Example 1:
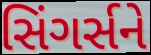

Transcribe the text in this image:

સિંગર્સને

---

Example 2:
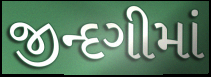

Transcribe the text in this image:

જીન્દગીમાં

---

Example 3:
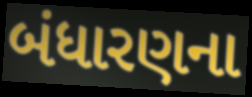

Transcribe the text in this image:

બંધારણના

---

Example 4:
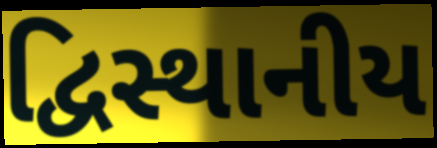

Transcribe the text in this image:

દ્વિસ્થાનીય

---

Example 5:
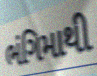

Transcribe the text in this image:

ભંગિમાથી